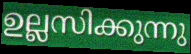
ഉല്ലസിക്കുന്നു